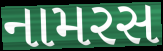
નામરસ